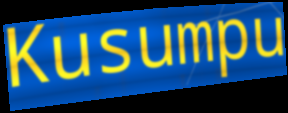
Kusumpu